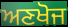
ਅਣਖੋਜ